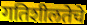
गतिशीलतेचे